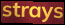
strays